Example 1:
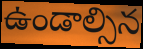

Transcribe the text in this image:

ఉండాల్సిన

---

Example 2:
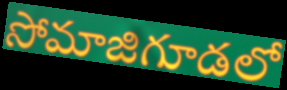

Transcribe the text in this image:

సోమాజిగూడలో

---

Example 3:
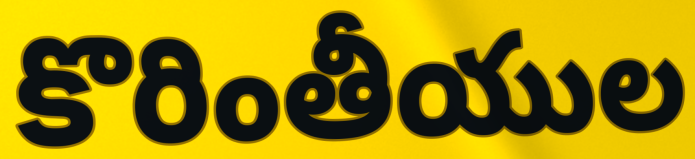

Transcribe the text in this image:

కొరింతీయుల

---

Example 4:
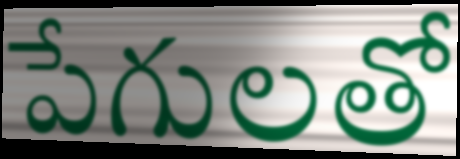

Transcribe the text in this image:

పేగులతో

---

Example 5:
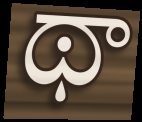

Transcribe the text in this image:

థా